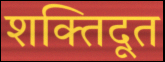
शक्तिदूत